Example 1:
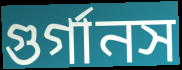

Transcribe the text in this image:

গুর্গানস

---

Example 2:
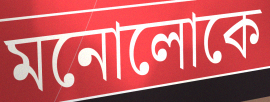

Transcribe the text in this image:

মনোলোকে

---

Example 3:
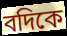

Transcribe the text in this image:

বদিকে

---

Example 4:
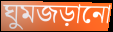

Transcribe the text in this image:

ঘুমজড়ানো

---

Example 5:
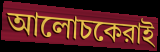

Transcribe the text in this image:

আলোচকেরাই